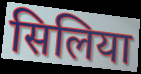
सिलिया